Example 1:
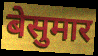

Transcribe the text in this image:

बेसुमार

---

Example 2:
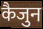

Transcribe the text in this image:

कैजुन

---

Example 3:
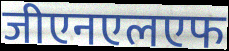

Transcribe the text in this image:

जीएनएलएफ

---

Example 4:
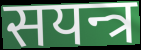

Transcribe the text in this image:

सयन्त्र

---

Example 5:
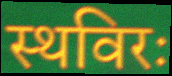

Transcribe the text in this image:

स्थविरः